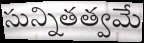
సున్నితత్వమే